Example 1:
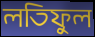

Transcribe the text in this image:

লতিফুল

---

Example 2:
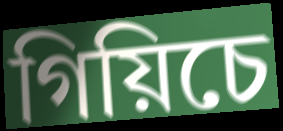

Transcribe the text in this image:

গিয়িচে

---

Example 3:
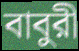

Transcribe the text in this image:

বাবুরী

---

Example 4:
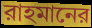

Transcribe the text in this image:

রাহমানের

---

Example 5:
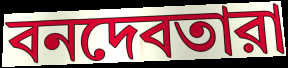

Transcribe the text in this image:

বনদেবতারা